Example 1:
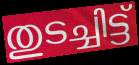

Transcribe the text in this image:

തുടച്ചിട്ട്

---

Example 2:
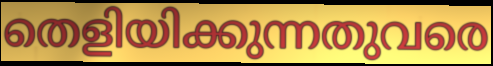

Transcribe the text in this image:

തെളിയിക്കുന്നതുവരെ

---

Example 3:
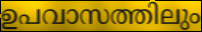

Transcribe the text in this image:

ഉപവാസത്തിലും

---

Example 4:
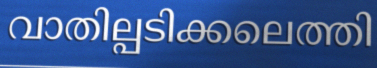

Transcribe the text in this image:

വാതില്പടിക്കലെത്തി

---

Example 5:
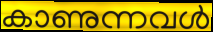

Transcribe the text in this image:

കാണുന്നവൾ